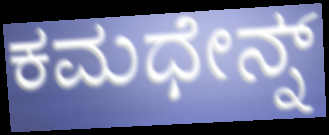
ಕಮಧೇನ್ನ್